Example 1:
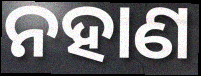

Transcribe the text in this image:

ନହାଣ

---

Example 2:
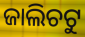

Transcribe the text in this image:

ଜାଲିଚଟୁ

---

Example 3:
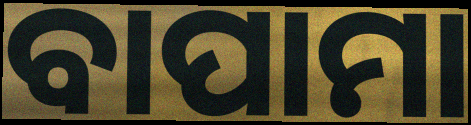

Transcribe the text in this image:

ବାପାମା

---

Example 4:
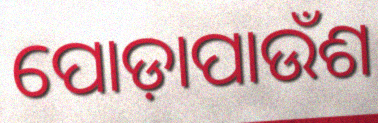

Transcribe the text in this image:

ପୋଡ଼ାପାଉଁଶ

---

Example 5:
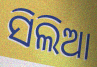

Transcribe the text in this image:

ସିଲିଆ